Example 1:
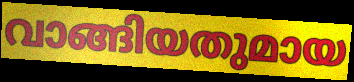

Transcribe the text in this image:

വാങ്ങിയതുമായ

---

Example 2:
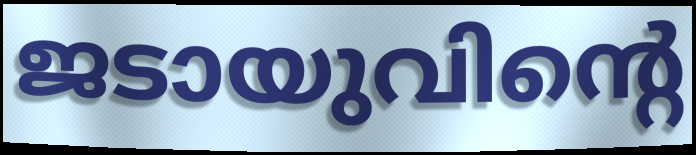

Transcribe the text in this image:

ജടായുവിന്റെ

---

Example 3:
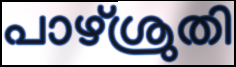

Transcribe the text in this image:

പാഴ്ശ്രുതി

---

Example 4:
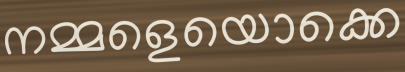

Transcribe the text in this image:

നമ്മളെയൊക്കെ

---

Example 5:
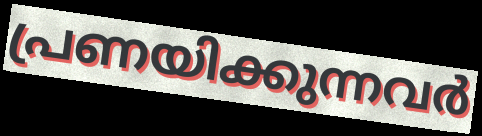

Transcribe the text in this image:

പ്രണയിക്കുന്നവർ